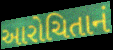
આરોચિતાનં